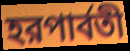
হরপার্বতী